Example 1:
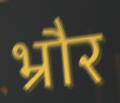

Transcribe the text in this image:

भ्रौर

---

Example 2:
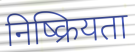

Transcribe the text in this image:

निष्क्रियता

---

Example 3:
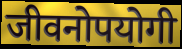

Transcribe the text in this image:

जीवनोपयोगी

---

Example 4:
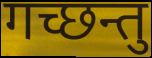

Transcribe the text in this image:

गच्छन्तु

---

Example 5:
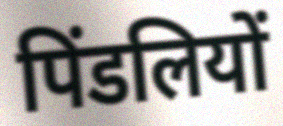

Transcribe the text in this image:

पिंडलियों